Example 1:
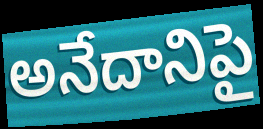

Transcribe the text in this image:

అనేదానిపై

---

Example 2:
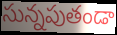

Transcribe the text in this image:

సున్నపుతండా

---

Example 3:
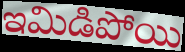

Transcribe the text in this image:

ఇమిడిపోయి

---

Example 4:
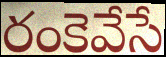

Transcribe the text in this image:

రంకెవేసే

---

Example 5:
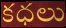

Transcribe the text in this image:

కధలు